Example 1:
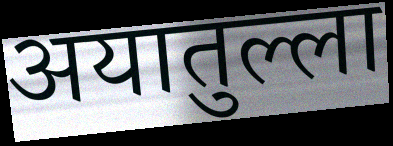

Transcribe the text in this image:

अयातुल्‍ला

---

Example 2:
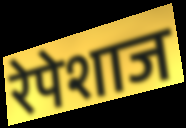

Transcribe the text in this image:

रेपेशाज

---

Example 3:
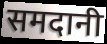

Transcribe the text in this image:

समदानी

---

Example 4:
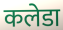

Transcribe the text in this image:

कलेडा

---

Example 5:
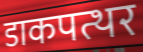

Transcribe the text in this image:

डाकपत्थर